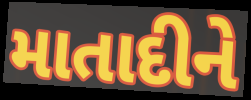
માતાદીને